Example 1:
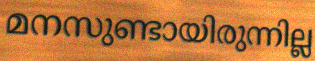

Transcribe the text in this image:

മനസുണ്ടായിരുന്നില്ല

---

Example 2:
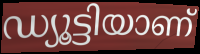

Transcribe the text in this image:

ഡ്യൂട്ടിയാണ്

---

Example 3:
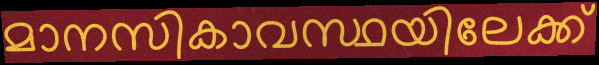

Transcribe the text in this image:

മാനസികാവസ്ഥയിലേക്ക്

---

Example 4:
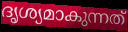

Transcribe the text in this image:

ദൃശ്യമാകുന്നത്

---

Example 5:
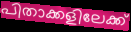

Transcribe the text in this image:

പിതാക്കളിലേക്ക്